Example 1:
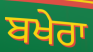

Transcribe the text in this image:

ਬਖੇਰਾ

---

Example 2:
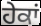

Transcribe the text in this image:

ਹੇਕਾਂ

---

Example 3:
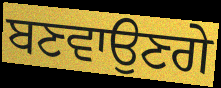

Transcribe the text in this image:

ਬਣਵਾਉਣਗੇ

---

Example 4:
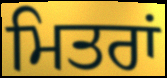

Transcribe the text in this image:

ਮਿਤਰਾਂ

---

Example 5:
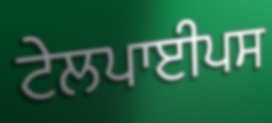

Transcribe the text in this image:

ਟੇਲਪਾਈਪਸ